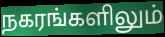
நகரங்களிலும்